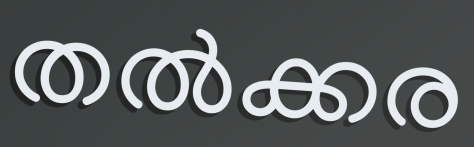
തൽക്കര